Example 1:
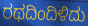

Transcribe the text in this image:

ರಥದಿಂದಿಳಿದು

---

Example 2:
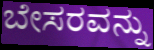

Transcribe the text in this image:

ಬೇಸರವನ್ನು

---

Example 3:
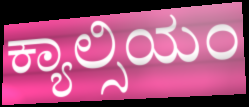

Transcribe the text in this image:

ಕ್ಯಾಲ್ಸಿಯಂ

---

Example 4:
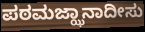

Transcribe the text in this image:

ಪಠಮಜ್ಝಾನಾದೀಸು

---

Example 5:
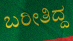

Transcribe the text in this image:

ಬರೀತಿದ್ದ